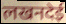
लखनदेई